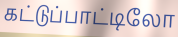
கட்டுப்பாட்டிலோ